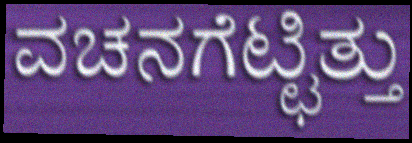
ವಚನಗೆಟ್ಟಿತ್ತು